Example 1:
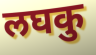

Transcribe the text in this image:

लघकु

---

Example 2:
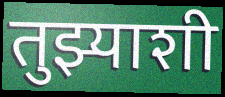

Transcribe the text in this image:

तुझ्याशी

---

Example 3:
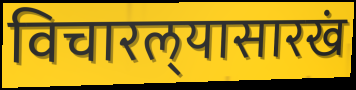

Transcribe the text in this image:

विचारल्यासारखं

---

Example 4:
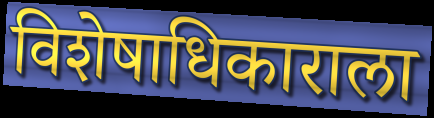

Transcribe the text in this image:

विशेषाधिकाराला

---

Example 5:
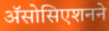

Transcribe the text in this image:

ॲसोसिएशनने